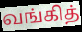
வங்கித்